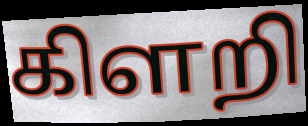
கிளறி